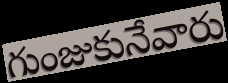
గుంజుకునేవారు